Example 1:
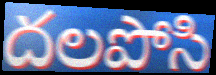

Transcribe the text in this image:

దలపోసి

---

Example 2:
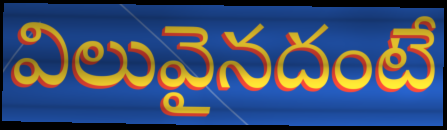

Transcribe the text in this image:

విలువైనదంటే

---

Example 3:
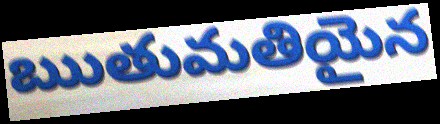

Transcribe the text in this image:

ఋతుమతియైన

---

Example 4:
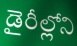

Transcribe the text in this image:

డైరీల్లోని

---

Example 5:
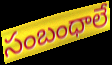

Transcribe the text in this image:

సంబంధాలే